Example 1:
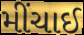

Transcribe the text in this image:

મીંચાઈ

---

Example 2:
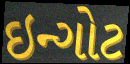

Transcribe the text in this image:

ઇન્ગોટ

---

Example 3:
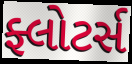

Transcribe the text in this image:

ફ્લોટર્સ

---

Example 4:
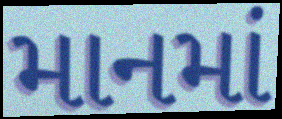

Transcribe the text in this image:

માનમાં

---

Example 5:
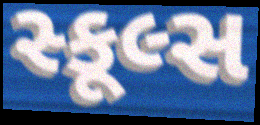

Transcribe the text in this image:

સ્કૂલ્સ